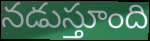
నడుస్తూంది